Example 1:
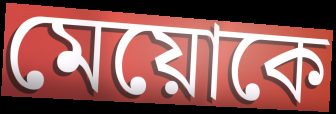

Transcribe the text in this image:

মেয়োকে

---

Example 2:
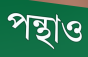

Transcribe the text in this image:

পন্থাও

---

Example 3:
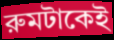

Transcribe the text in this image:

রুমটাকেই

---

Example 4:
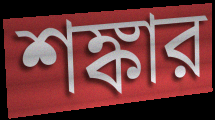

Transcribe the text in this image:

শঙ্কার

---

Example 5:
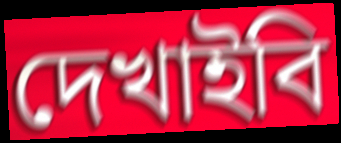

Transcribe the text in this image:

দেখাইবি